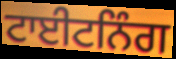
ਟਾਈਟਨਿੰਗ